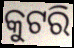
କୁଟରି